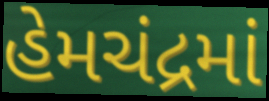
હેમચંદ્રમાં